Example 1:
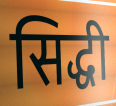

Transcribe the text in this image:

सिद्धी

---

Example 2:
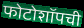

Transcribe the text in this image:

फोटोशॉपची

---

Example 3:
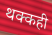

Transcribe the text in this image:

थक्कही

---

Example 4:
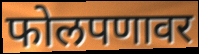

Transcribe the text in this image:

फोलपणावर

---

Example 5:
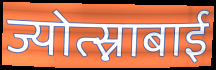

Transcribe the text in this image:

ज्योत्स्नाबाई